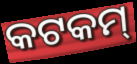
କଟକମ୍